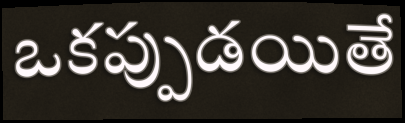
ఒకప్పుడయితే